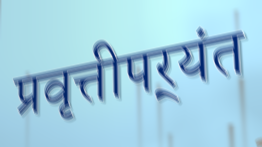
प्रवृत्तीपर्यंत